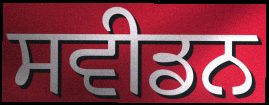
ਸਵੀਡਨ